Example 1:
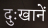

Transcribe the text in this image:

दुःखानें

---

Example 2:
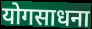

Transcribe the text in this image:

योगसाधना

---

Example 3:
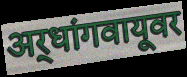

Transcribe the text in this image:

अर्धांगवायूवर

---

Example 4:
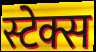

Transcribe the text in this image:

स्टेक्स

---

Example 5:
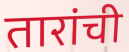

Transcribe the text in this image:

तारांची